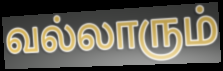
வல்லாரும்